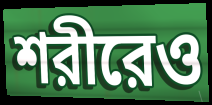
শরীরেও